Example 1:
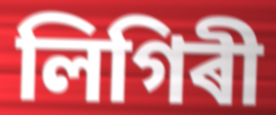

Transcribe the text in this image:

লিগিৰী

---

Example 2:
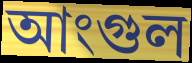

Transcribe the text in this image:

আংগুল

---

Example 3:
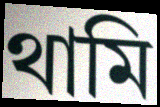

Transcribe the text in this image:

থামি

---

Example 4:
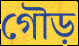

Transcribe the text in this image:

গৌড়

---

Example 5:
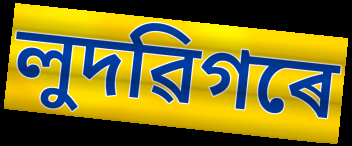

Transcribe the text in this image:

লুদৱিগৰে